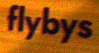
flybys